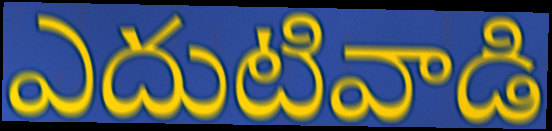
ఎదుటివాడి